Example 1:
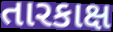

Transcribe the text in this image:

તારકાક્ષ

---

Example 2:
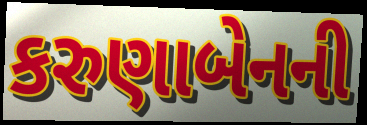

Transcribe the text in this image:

કરુણાબેનની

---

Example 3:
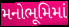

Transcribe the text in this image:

મનોભૂમિમાં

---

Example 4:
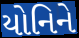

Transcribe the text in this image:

યોનિને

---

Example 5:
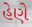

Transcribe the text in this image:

હેણે